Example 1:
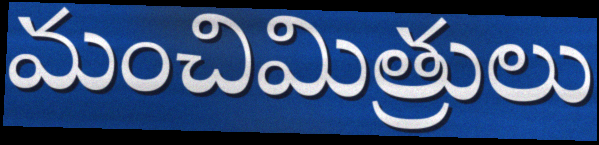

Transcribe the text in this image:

మంచిమిత్రులు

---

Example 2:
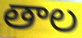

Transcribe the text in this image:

తాల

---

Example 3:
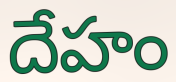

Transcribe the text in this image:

దేహం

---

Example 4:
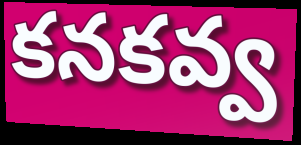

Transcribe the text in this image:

కనకవ్వ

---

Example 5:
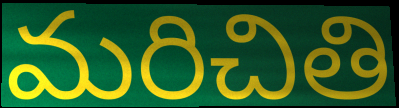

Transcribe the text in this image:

మరిచితి